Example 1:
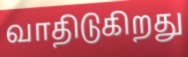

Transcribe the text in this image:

வாதிடுகிறது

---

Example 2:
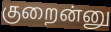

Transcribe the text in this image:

குறைன்னு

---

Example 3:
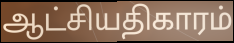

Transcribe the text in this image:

ஆட்சியதிகாரம்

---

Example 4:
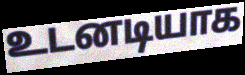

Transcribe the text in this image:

உடனடியாக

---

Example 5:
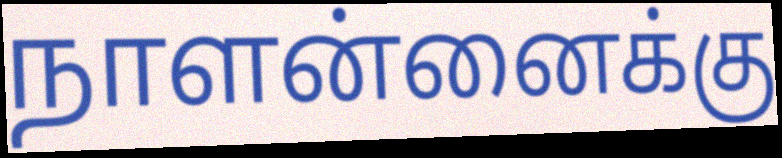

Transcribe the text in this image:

நாளன்னைக்கு